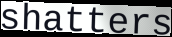
shatters